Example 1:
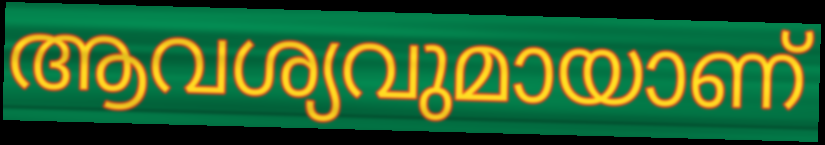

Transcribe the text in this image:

ആവശ്യവുമായാണ്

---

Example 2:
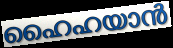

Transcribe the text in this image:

ഹൈഹയാൻ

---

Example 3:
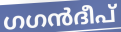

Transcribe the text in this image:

ഗഗൻദീപ്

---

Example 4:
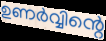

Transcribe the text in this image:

ഉണർവ്വിന്റെ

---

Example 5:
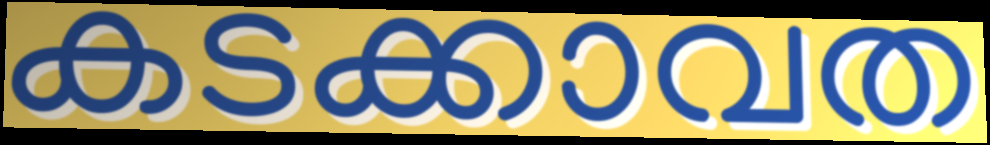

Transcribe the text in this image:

കടക്കാവത